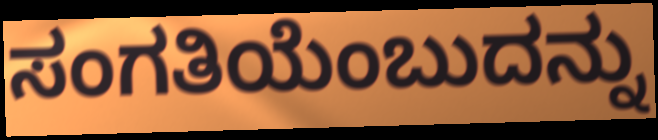
ಸಂಗತಿಯೆಂಬುದನ್ನು